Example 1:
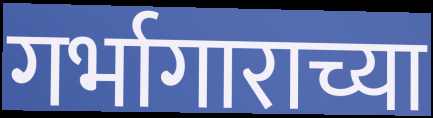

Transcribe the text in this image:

गर्भागाराच्या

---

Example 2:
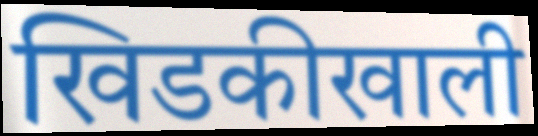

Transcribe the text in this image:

खिडकीखाली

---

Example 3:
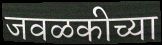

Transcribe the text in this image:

जवळकीच्या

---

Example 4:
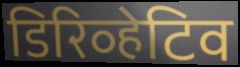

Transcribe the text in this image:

डिरिव्हेटिव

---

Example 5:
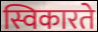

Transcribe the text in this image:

स्विकारते